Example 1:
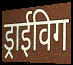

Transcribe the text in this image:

ड्राईविग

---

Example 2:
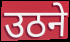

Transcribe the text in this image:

उठने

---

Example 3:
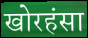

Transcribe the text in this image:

खोरहंसा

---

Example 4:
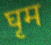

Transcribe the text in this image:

घृम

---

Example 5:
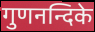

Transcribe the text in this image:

गुणनन्दिके